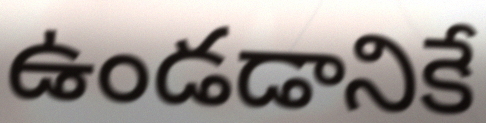
ఉండడానికే